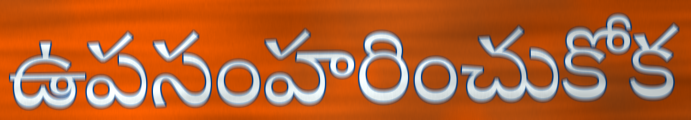
ఉపసంహరించుకోక